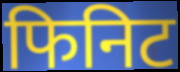
फिनिट